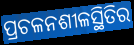
ପ୍ରଚଳନଶୀଳସ୍ଥିତିର